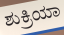
ಶುಕ್ರಿಯಾ